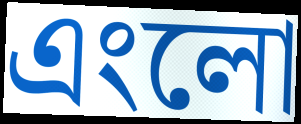
এংলো